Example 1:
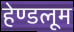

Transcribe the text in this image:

हेण्डलूम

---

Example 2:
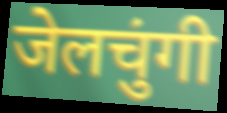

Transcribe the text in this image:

जेलचुंगी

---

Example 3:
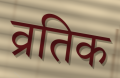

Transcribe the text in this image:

व्रतिक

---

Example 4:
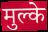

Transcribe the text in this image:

मुल्के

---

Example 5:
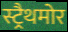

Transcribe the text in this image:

स्ट्रैथमोर